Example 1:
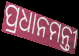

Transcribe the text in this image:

ପ୍ରଧାନମନ୍ତୀ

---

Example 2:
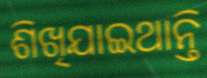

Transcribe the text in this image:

ଶିଖିଯାଇଥାନ୍ତି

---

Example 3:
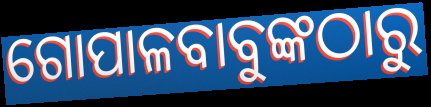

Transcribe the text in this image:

ଗୋପାଳବାବୁଙ୍କଠାରୁ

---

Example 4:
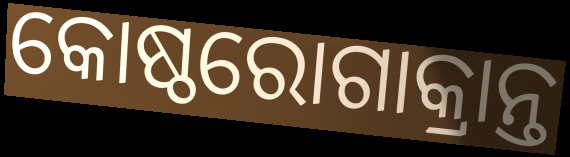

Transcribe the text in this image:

କୋଷ୍ଠରୋଗାକ୍ରାନ୍ତ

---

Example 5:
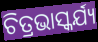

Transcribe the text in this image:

ଚିତ୍ରଭାସ୍କର୍ଯ୍ୟ